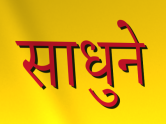
साधुने